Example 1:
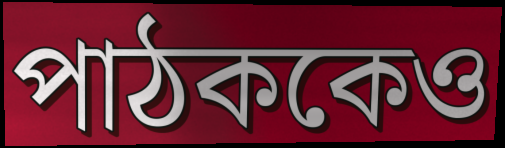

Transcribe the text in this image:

পাঠককেও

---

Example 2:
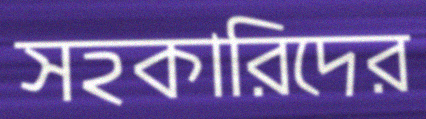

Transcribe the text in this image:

সহকারিদের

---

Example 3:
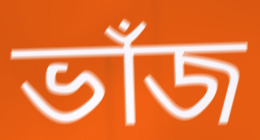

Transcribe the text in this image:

ভাঁজ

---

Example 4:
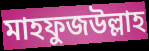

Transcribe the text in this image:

মাহফুজউল্লাহ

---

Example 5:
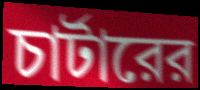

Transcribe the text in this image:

চার্টারের